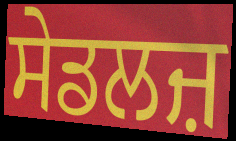
ਸੇਡਲਜ਼